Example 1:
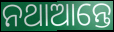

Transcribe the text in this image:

ନଥାଆନ୍ତେ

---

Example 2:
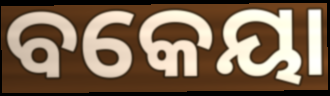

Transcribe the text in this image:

ବକେୟା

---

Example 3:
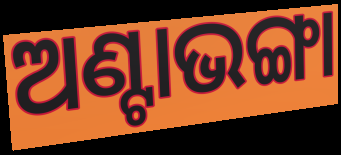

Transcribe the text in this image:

ଅଣ୍ଟାଭଙ୍ଗା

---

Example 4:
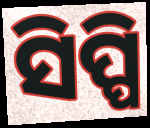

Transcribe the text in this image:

ସିପ୍ପି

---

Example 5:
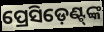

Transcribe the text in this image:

ପ୍ରେସିଡ଼େଣ୍ଟ୍‍ଙ୍କ